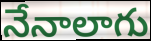
నేనాలాగు